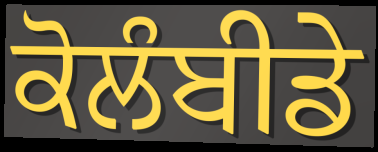
ਕੋਲੰਬੀਡੇ